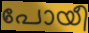
പോയീ